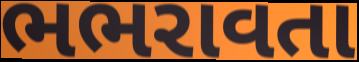
ભભરાવતા